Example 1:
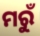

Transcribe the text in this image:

ମରୁଁ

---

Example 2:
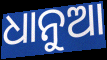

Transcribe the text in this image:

ଧାନୁଆ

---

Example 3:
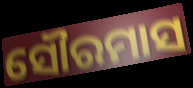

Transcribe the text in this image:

ସୌରମାସ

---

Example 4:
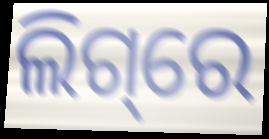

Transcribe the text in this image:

ଲିଗ୍‌ରେ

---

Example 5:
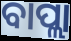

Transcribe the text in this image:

ବାପ୍ଲା